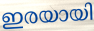
ഇരയായി